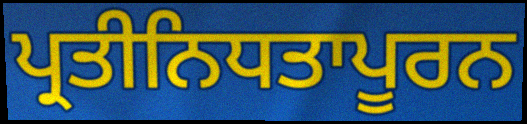
ਪ੍ਰਤੀਨਿਧਤਾਪੂਰਨ